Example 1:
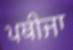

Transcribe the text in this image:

ਪਥੀਜਾ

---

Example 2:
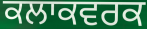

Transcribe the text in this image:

ਕਲਾਕਵਰਕ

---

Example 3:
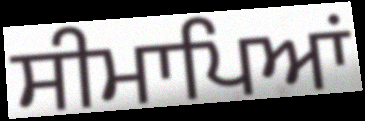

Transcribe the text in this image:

ਸੀਮਾਪਿਆਂ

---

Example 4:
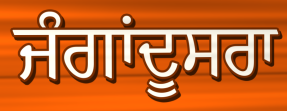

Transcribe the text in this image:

ਜੰਗਾਂਦੂਸਰਾ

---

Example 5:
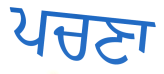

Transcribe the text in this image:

ਪਚਣਾ